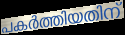
പകർത്തിയതിന്